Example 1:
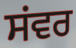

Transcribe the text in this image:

ਸਂਵਰ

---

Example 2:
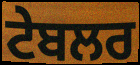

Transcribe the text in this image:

ਟੇਬਲਰ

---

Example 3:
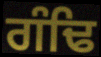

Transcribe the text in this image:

ਗੰਢਿ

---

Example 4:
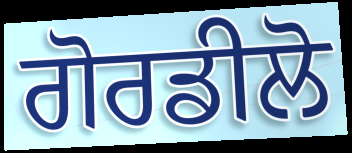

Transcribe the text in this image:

ਗੋਰਡੀਲੋ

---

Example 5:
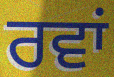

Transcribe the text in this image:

ਰਵਾਂ